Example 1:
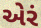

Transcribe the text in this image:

એરં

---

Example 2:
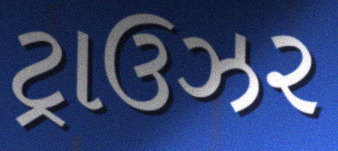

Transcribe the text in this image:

ટ્રાઉઝર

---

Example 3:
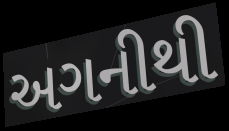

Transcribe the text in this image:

અગનીથી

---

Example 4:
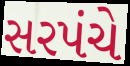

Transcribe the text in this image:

સરપંચે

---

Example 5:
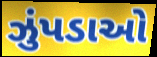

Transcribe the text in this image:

ઝુંપડાઓ